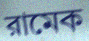
রামেক